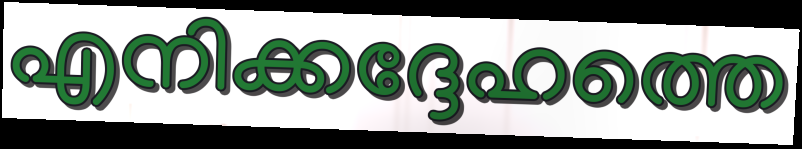
എനിക്കദ്ദേഹത്തെ